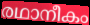
രഥാനീകം